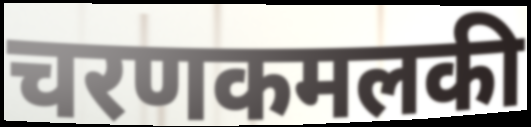
चरणकमलकी